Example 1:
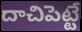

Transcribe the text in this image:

దాచిపెట్టే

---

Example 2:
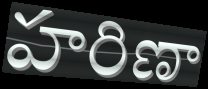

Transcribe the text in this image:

హరిణా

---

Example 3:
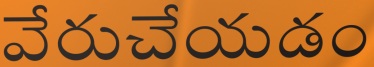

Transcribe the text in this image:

వేరుచేయడం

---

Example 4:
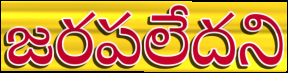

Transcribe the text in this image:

జరపలేదని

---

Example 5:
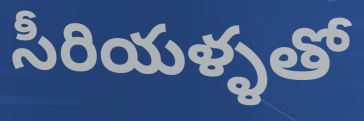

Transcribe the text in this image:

సీరియళ్ళతో